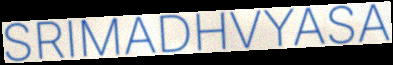
SRIMADHVYASA